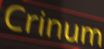
Crinum